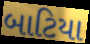
બાટિયા